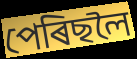
পেৰিছলৈ